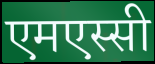
एमएस्सी